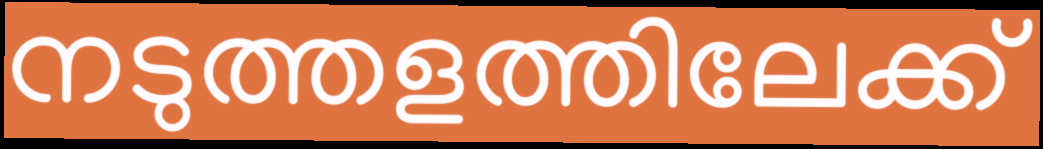
നടുത്തളത്തിലേക്ക്